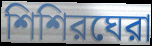
শিশিরঘেরা